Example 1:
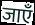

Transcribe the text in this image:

जाएँ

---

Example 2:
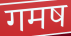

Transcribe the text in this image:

गमष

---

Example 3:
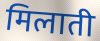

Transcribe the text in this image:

मिलाती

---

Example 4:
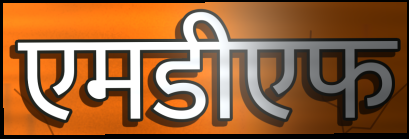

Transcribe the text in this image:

एमडीएफ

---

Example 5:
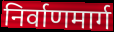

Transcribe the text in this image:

निर्वाणमार्ग